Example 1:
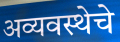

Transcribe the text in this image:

अव्यवस्थेचे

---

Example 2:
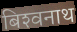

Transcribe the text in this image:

बिश्वनाथ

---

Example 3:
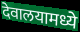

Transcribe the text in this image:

देवालयामध्ये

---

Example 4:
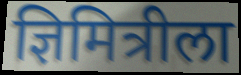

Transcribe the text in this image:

ज्ञिमित्रीला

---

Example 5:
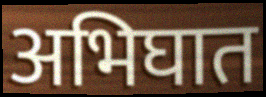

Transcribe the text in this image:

अभिघात